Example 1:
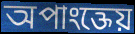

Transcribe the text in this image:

অপাংক্তেয়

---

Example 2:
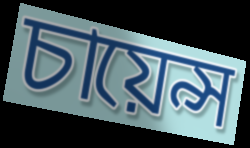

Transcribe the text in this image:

চায়েন্স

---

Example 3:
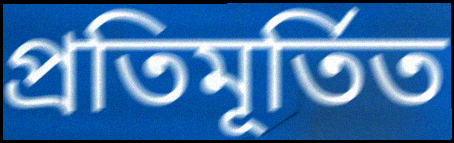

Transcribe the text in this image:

প্ৰতিমূৰ্তিত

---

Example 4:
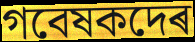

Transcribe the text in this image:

গবেষকদেৰ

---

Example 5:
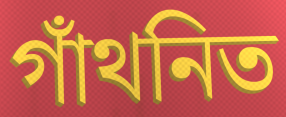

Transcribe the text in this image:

গাঁথনিত